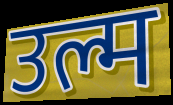
उल्म